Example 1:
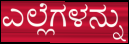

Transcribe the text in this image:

ಎಲ್ಲೆಗಳನ್ನು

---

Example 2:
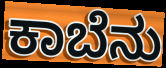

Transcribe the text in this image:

ಕಾಬೆನು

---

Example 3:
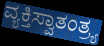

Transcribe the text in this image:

ವ್ಯಕ್ತಿಸ್ವಾತಂತ್ರ್ಯ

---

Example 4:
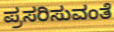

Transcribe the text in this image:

ಪ್ರಸರಿಸುವಂತೆ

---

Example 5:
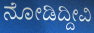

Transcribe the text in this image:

ನೋಡಿದ್ದೀವಿ